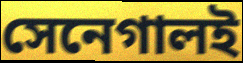
সেনেগালই